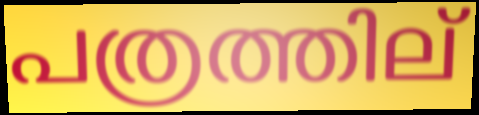
പത്രത്തില്